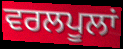
ਵਰਲਪੂਲਾਂ